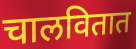
चालवितात